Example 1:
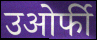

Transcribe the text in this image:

उओर्फी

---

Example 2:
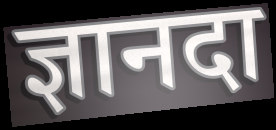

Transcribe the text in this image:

ज्ञानदा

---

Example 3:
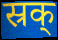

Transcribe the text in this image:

स्रक्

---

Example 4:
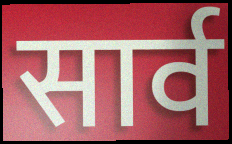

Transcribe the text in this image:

सार्व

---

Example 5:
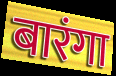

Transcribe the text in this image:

बारंगा